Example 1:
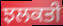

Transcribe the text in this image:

ਝਲਕਤੀ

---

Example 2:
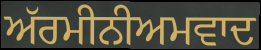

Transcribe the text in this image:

ਅੱਰਮੀਨੀਅਮਵਾਦ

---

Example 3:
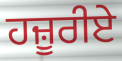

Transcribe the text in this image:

ਹਜ਼ੂਰੀਏ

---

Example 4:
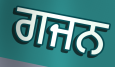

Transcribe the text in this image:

ਗਜਨ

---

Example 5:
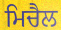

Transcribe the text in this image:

ਮਿਚੈਲ